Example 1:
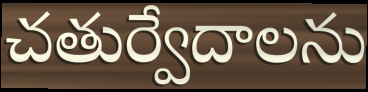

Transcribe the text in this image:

చతుర్వేదాలను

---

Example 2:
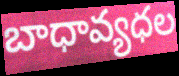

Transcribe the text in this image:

బాధావ్యధల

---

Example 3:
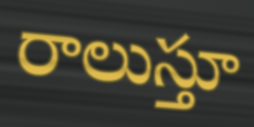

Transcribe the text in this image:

రాలుస్తూ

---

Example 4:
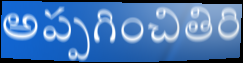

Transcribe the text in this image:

అప్పగించితిరి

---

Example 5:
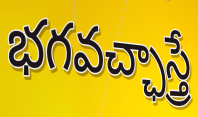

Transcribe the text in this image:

భగవచ్ఛాస్త్రే